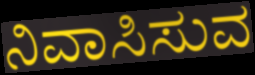
ನಿವಾಸಿಸುವ